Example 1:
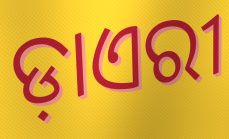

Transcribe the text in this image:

ଡ଼ାଏରୀ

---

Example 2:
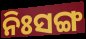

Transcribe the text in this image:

ନିଃସଙ୍ଗ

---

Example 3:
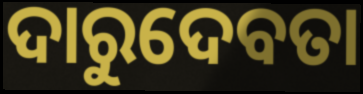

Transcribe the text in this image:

ଦାରୁଦେବତା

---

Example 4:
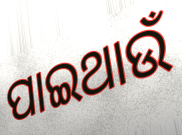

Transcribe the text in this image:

ପାଇଥାଉଁ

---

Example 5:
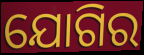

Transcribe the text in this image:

ଯୋଗିର